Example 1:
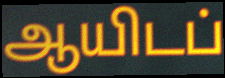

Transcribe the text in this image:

ஆயிடப்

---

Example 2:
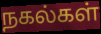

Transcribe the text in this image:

நகல்கள்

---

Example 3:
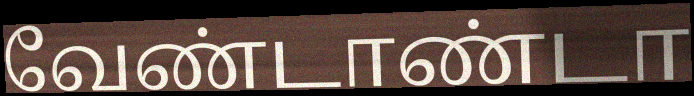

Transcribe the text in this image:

வேண்டாண்டா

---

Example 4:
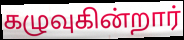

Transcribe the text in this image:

கழுவுகின்றார்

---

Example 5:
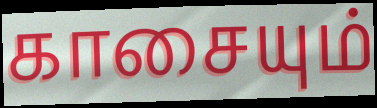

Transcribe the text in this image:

காசையும்